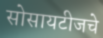
सोसायटीजचे